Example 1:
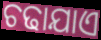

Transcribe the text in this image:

ଚଢାଯାଏ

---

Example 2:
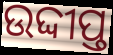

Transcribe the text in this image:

ଉଦ୍ଦୀପ୍ତ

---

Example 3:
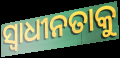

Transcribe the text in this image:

ସ୍ୱାଧୀନତାକୁ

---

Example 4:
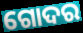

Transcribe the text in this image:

ଗୋଦର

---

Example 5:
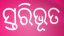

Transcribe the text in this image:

ସ୍ତରିଭୂତ